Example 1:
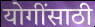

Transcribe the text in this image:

योगींसाठी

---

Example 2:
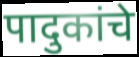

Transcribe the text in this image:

पादुकांचे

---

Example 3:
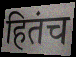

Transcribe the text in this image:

हितंच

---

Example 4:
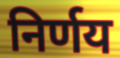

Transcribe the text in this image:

निर्णय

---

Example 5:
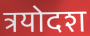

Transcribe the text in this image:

त्रयोदश